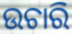
ଉଚାରି